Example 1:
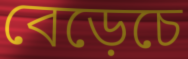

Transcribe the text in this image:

বেড়েচে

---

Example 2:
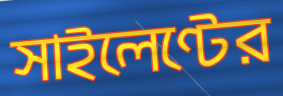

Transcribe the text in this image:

সাইলেণ্টের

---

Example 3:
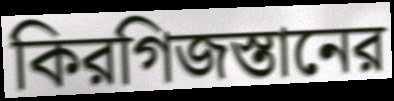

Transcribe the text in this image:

কিরগিজস্তানের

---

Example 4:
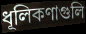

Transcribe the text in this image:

ধূলিকণাগুলি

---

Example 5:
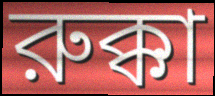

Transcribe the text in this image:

রুক্কা